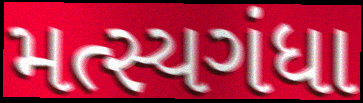
મત્સ્યગંધા